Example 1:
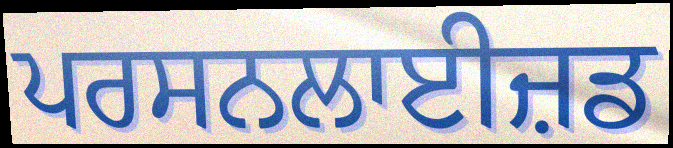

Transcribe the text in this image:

ਪਰਸਨਲਾਈਜ਼ਡ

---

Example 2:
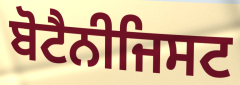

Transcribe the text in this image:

ਬੋਟੈਨੀਜਿਸਟ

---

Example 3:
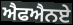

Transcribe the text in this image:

ਐਫਐਨਏ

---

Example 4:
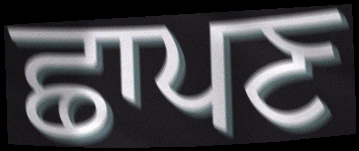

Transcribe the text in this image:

ਛਾਪਣ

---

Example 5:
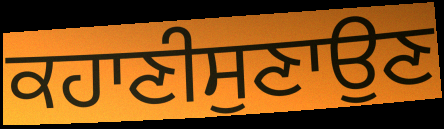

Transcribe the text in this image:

ਕਹਾਣੀਸੁਣਾਉਣ